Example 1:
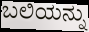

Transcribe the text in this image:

ಬಲಿಯನ್ನು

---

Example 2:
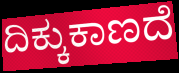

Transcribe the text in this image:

ದಿಕ್ಕುಕಾಣದೆ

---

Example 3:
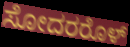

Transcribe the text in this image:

ಸೋದರರೊಳ್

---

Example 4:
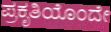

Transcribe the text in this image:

ಪ್ರಕೃತಿಯೊಂದೇ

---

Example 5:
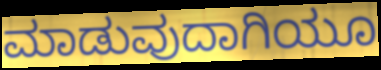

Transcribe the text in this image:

ಮಾಡುವುದಾಗಿಯೂ